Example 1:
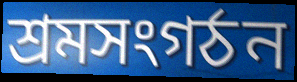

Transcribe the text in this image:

শ্রমসংগঠন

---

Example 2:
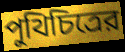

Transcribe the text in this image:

পুথিচিত্রের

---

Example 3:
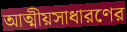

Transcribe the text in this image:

আত্মীয়সাধারণের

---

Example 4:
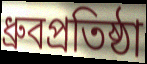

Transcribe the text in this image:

ধ্রুবপ্রতিষ্ঠা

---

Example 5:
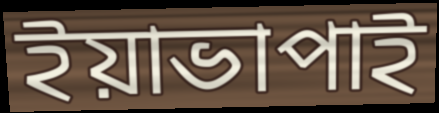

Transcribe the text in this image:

ইয়াভাপাই